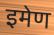
इमेण